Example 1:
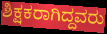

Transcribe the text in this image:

ಶಿಕ್ಷಕರಾಗಿದ್ದವರು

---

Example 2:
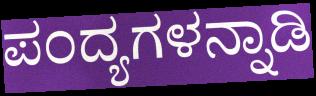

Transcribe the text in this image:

ಪಂದ್ಯಗಳನ್ನಾಡಿ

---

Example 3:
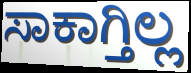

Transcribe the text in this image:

ಸಾಕಾಗ್ತಿಲ್ಲ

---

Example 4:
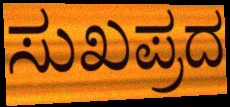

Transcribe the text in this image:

ಸುಖಪ್ರದ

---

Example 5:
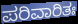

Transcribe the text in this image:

ಪರಿವಾರಿತಃ